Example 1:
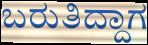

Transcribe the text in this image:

ಬರುತಿದ್ದಾಗ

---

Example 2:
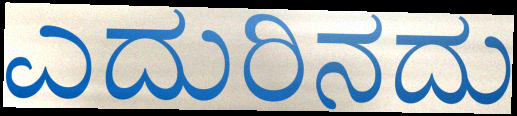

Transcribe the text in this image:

ಎದುರಿನದು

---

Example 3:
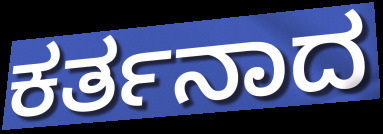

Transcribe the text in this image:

ಕರ್ತನಾದ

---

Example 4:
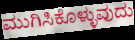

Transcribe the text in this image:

ಮುಗಿಸಿಕೊಳ್ಳುವುದು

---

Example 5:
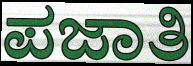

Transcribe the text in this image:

ಪಜಾತಿ